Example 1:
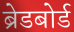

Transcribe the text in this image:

ब्रेडबोर्ड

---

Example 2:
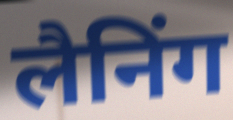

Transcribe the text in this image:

लैनिंग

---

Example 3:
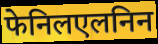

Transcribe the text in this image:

फेनिलएलनिन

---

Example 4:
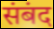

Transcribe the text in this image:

संबंद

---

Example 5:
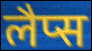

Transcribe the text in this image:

लैप्स